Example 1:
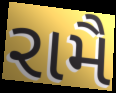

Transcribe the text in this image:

રામૈ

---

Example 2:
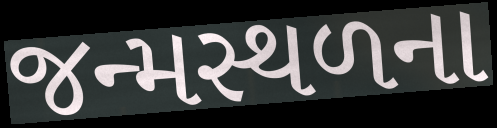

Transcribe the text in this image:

જન્મસ્થળના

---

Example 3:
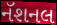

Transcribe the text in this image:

નૅશનલ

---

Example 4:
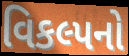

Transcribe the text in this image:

વિકલ્પનો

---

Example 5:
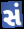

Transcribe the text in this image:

સં